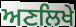
ਅਣਲਿਖੇ